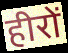
हीरों